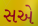
સએ